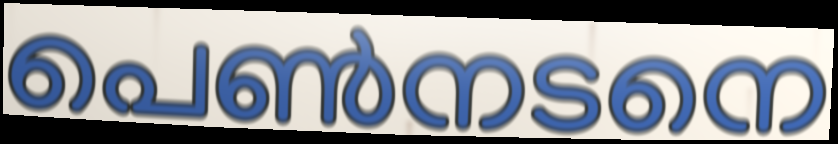
പെൺനടനെ